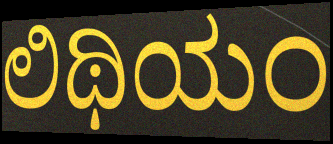
ಲಿಥಿಯಂ